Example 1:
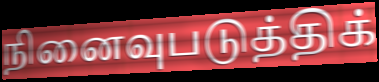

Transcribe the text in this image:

நினைவுபடுத்திக்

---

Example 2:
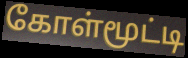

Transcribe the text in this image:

கோள்மூட்டி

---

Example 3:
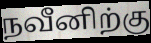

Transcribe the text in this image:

நவீனிற்கு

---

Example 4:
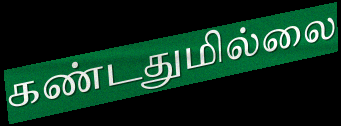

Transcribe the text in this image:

கண்டதுமில்லை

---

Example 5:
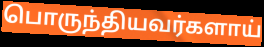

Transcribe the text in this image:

பொருந்தியவர்களாய்